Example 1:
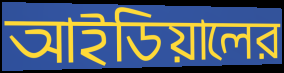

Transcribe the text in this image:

আইডিয়ালের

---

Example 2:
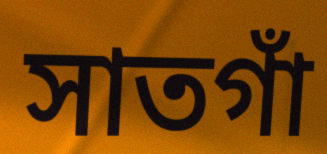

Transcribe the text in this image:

সাতগাঁ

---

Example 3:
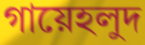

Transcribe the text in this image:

গায়েহলুদ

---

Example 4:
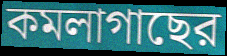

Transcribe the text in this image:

কমলাগাছের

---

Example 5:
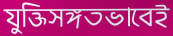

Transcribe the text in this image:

যুক্তিসঙ্গতভাবেই